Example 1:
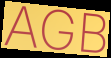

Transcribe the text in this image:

AGB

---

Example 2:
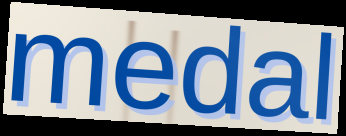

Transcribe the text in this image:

medal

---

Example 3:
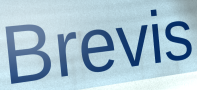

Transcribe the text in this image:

Brevis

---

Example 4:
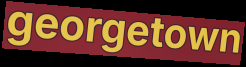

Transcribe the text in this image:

georgetown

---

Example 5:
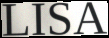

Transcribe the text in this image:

LISA